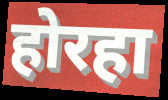
होरहा